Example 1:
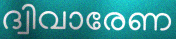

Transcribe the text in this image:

ദ്വിവാരേണ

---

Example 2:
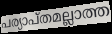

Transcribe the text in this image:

പര്യാപ്തമല്ലാത്ത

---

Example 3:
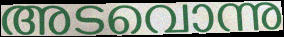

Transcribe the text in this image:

അടവൊന്നു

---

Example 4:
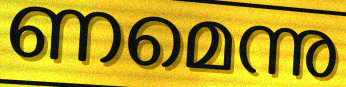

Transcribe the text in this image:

ണമെന്നു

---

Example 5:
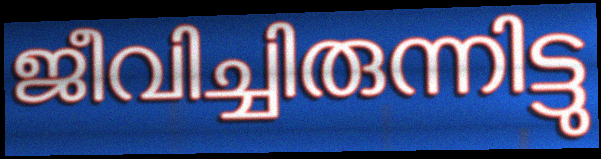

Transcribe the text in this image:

ജീവിച്ചിരുന്നിട്ടു